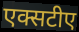
एक्सटीए